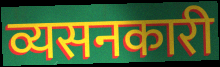
व्यसनकारी